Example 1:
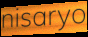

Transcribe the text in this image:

nisaryo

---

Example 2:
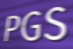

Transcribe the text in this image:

PGS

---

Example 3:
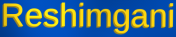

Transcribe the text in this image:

Reshimgani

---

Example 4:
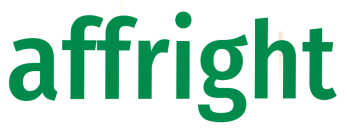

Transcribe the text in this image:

affright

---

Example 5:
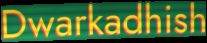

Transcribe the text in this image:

Dwarkadhish